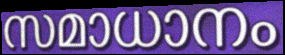
സമാധാനം